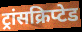
ट्रांसक्रिप्टेड